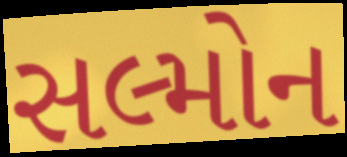
સલ્મોન